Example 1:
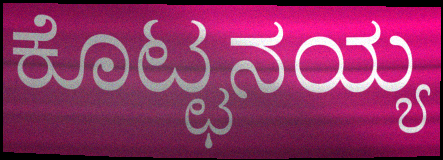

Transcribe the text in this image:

ಕೊಟ್ಟನಯ್ಯ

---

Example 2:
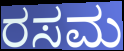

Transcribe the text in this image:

ರಸಮ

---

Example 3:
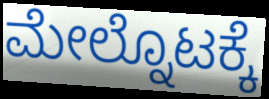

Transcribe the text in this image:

ಮೇಲ್ನೊಟಕ್ಕೆ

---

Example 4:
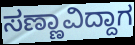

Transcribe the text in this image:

ಸಣ್ಣಾವಿದ್ದಾಗ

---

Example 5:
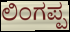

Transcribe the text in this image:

ಲಿಂಗಪ್ಪ